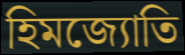
হিমজ্যোতি